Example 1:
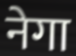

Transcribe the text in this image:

नेगा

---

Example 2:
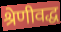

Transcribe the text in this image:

श्रेणीवद्ध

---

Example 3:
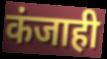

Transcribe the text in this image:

कंजाही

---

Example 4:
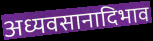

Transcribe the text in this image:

अध्यवसानादिभाव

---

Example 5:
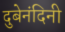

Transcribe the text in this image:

दुबेनंदिनी